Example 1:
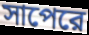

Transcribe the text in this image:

সাপেরে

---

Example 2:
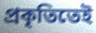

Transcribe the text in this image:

প্রকৃতিতেই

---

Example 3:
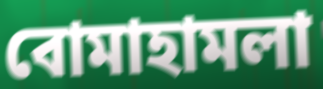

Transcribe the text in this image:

বোমাহামলা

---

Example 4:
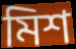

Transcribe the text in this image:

মিশ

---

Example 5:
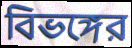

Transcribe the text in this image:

বিভঙ্গের